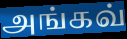
அங்கவ்